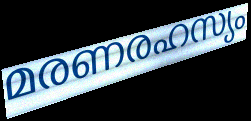
മരണരഹസ്യം